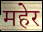
महेर